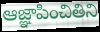
ఆజ్ఞాపించితిని